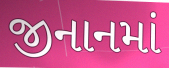
જીનાનમાં